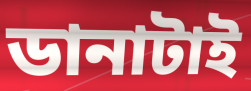
ডানাটাই